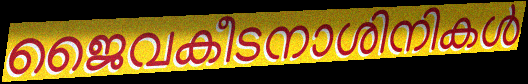
ജൈവകീടനാശിനികൾ